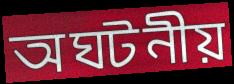
অঘটনীয়